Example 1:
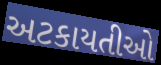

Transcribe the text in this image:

અટકાયતીઓ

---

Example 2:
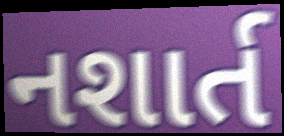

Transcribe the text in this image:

નશાર્ત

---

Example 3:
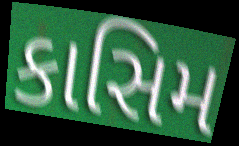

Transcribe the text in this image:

કાસિમ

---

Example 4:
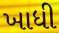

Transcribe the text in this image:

ખાધી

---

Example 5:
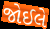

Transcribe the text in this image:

જોઈલે